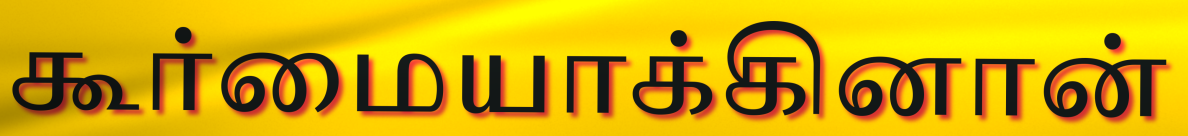
கூர்மையாக்கினான்